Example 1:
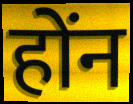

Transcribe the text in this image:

होंन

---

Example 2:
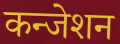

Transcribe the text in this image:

कन्जेशन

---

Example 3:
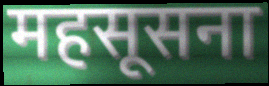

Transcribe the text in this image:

महसूसना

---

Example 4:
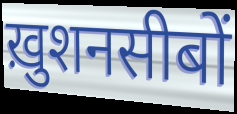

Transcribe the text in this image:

ख़ुशनसीबों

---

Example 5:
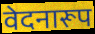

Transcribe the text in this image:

वेदनारूप